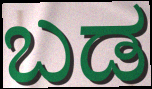
ಬಡ